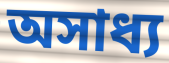
অসাধ্য